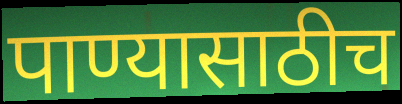
पाण्यासाठीच